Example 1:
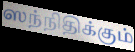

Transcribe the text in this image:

ஸந்நிதிக்கும்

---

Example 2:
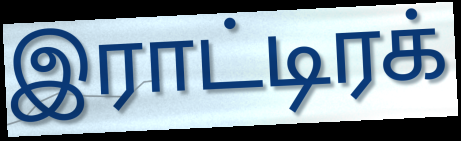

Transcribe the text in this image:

இராட்டிரக்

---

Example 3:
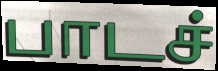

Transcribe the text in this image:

பாடச்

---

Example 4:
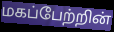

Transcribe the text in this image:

மகப்பேற்றின்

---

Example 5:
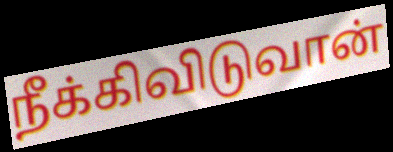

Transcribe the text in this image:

நீக்கிவிடுவான்